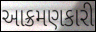
આક્રમણકારી